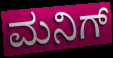
ಮನಿಗ್